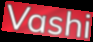
Vashi